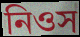
নিওস